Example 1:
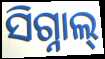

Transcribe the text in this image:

ସିଗ୍ନାଲ୍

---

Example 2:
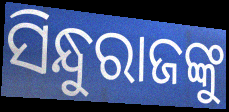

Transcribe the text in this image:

ସିନ୍ଧୁରାଜଙ୍କୁ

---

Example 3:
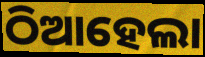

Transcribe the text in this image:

ଠିଆହେଲା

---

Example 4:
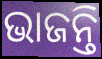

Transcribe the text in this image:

ଭାଜନ୍ତି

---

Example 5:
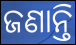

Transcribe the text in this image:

ଜଣାନ୍ତି